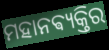
ମହାନଵ୍ୟକ୍ତିର